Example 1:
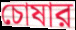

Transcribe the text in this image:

চোষার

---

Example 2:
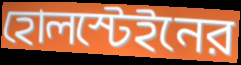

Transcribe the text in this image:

হোলস্টেইনের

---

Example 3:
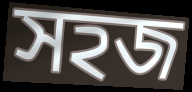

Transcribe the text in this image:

সহজ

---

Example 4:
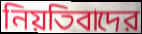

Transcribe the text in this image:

নিয়তিবাদের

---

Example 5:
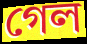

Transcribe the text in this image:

গেল